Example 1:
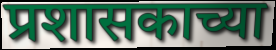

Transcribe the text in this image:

प्रशासकाच्या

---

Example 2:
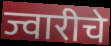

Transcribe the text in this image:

ज्वारीचे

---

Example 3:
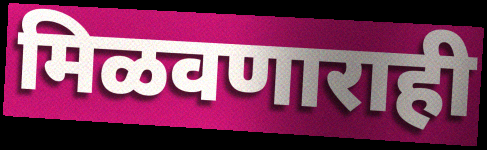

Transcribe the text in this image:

मिळवणाराही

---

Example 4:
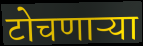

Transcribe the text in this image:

टोचणाऱ्या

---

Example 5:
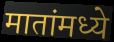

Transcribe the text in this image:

मातांमध्ये